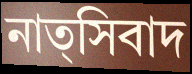
নাত্সিবাদ